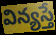
విన్యస్తే